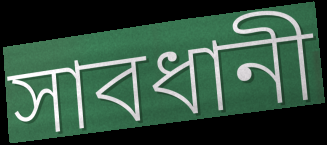
সাবধানী